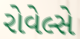
રોવેલ્સે